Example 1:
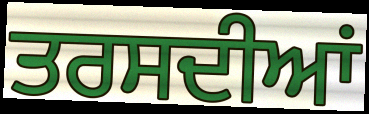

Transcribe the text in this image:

ਤਰਸਦੀਆਂ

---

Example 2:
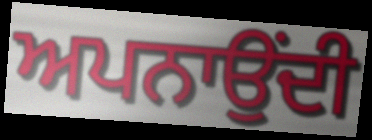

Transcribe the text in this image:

ਅਪਨਾਉਂਦੀ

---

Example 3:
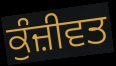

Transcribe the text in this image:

ਕੁੰਜ਼ੀਵਤ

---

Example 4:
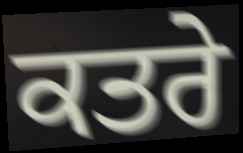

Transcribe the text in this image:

ਕਤਰੇ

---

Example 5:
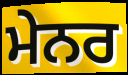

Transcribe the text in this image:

ਮੇਨਰ